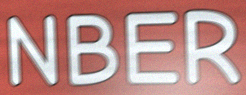
NBER